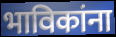
भाविकांना